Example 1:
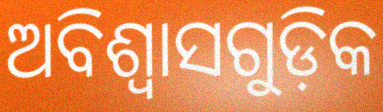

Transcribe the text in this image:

ଅବିଶ୍ଵାସଗୁଡ଼ିକ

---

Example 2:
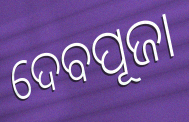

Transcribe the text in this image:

ଦେବପୂଜା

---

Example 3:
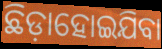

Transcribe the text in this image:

ଛିଡ଼ାହୋଇଯିବା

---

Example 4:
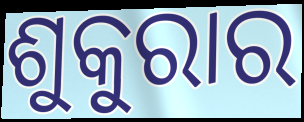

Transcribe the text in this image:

ଶୁକୁରାର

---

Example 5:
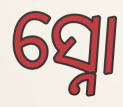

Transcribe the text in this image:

ସ୍ନୋ